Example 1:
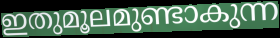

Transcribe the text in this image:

ഇതുമൂലമുണ്ടാകുന്ന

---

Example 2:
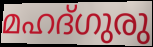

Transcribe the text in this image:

മഹദ്ഗുരു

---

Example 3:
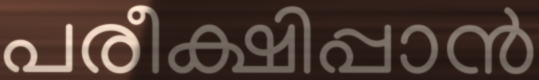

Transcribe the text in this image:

പരീക്ഷിപ്പാൻ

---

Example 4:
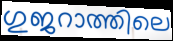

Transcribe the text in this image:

ഗുജറാത്തിലെ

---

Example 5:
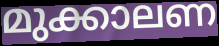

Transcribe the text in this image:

മുക്കാലണ